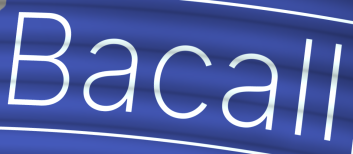
Bacall